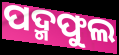
ପଦ୍ମଫୁଲ